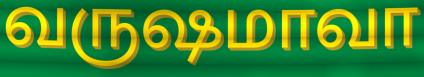
வருஷமாவா